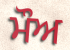
ਮੌਅ